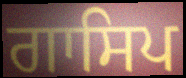
ਗਾਸਿਪ